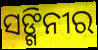
ସଙ୍ଗିନୀର